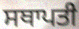
ਸਥਾਪਤੀ